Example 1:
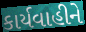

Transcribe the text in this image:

કાર્યવાહીને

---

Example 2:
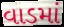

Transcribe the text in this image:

વાડમાં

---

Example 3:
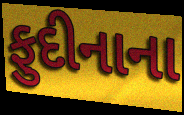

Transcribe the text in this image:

ફુદીનાના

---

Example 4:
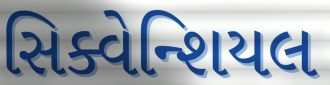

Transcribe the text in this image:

સિક્વેન્શિયલ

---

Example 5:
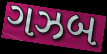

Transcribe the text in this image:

ગઝબ